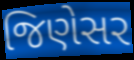
જિણેસર